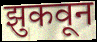
झुकवून